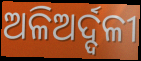
ଅଳିଅର୍ଦ୍ଦଳୀ